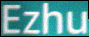
Ezhu